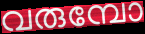
വരുമ്പോ